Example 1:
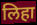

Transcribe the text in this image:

लिहा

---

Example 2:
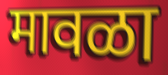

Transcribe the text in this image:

मावळा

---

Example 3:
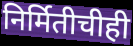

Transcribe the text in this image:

निर्मितीचीही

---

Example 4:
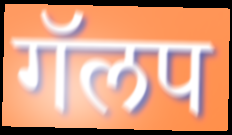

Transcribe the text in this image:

गॅलप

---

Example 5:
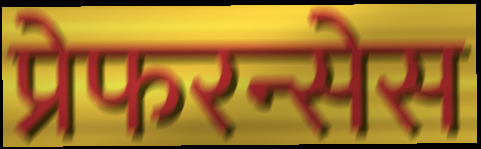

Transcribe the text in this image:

प्रेफरन्सेस